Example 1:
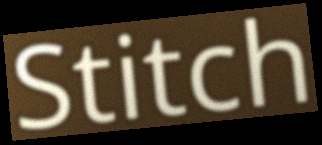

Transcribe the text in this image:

Stitch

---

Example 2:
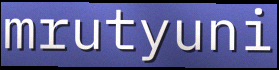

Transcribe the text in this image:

mrutyuni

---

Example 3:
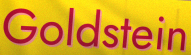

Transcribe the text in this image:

Goldstein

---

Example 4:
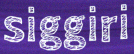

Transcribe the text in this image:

siggiri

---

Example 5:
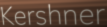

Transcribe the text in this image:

Kershner